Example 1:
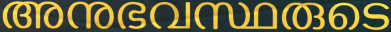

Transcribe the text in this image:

അനുഭവസ്ഥരുടെ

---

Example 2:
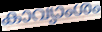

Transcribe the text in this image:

കാവ്യാംശം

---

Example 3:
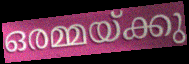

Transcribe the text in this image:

ഒരമ്മയ്ക്കു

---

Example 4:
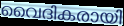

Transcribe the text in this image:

വൈദികരായി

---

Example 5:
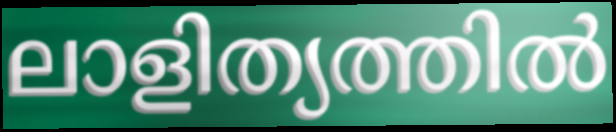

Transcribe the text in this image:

ലാളിത്യത്തിൽ